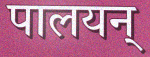
पालयन्